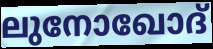
ലുനോഖോദ്